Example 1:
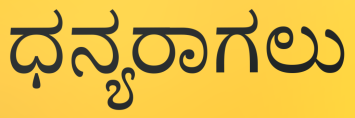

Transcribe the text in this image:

ಧನ್ಯರಾಗಲು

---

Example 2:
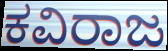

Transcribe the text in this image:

ಕವಿರಾಜ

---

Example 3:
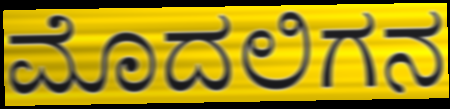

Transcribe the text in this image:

ಮೊದಲಿಗನ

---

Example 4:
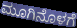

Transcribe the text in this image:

ಮೂಗಿನೊಳಗೆ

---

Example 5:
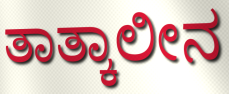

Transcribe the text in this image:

ತಾತ್ಕಾಲೀನ